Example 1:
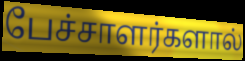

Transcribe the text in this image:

பேச்சாளர்களால்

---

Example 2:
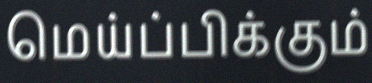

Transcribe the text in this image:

மெய்ப்பிக்கும்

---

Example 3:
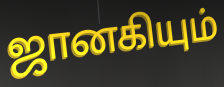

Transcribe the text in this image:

ஜானகியும்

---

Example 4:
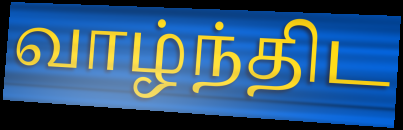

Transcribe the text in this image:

வாழ்ந்திட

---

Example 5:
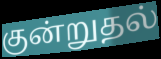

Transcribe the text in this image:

குன்றுதல்